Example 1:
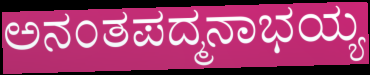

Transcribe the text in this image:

ಅನಂತಪದ್ಮನಾಭಯ್ಯ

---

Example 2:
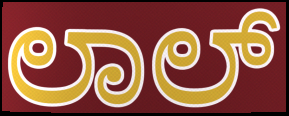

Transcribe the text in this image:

ಲಾಲ್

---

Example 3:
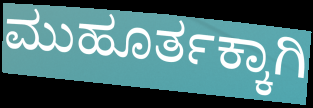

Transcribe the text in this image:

ಮುಹೂರ್ತಕ್ಕಾಗಿ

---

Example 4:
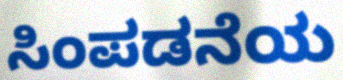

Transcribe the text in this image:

ಸಿಂಪಡನೆಯ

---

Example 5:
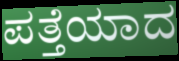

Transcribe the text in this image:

ಪತ್ತೆಯಾದ